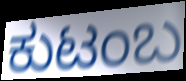
ಕುಟಂಬ